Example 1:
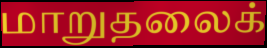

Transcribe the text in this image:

மாறுதலைக்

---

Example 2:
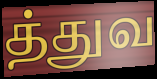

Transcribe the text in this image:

த்துவ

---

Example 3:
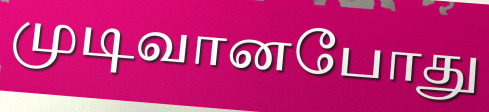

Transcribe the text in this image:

முடிவானபோது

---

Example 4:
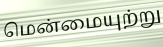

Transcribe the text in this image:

மென்மையுற்று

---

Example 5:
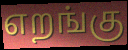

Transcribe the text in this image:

எறங்கு